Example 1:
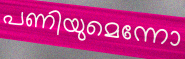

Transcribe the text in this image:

പണിയുമെന്നോ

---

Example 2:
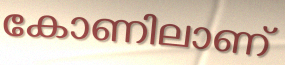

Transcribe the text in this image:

കോണിലാണ്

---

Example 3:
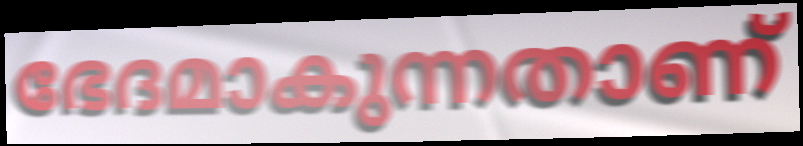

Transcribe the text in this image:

ഭേദമാകുന്നതാണ്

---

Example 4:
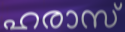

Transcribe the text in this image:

ഹരാസ്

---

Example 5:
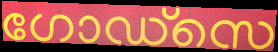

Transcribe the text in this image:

ഗോഡ്സെ